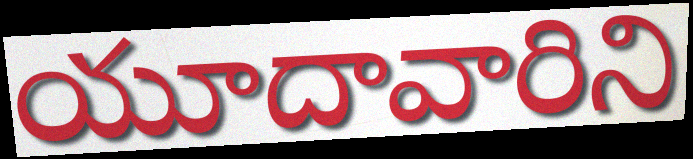
యూదావారిని